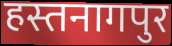
हस्तनागपुर